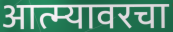
आत्म्यावरचा